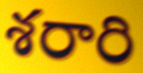
శరారి